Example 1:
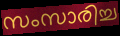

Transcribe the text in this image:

സംസാരിച്ച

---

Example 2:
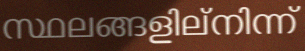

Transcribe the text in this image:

സ്ഥലങ്ങളില്നിന്ന്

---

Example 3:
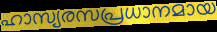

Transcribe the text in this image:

ഹാസ്യരസപ്രധാനമായ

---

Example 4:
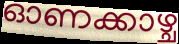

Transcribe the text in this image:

ഓണക്കാഴ്ച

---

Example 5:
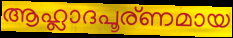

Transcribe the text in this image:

ആഹ്ലാദപൂര്ണമായ